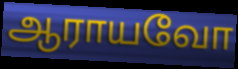
ஆராயவோ